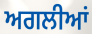
ਅਗਲੀਆਂ